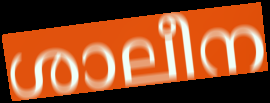
ശാലീന